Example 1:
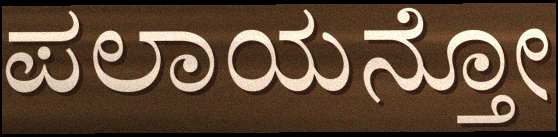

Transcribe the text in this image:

ಪಲಾಯನ್ತೋ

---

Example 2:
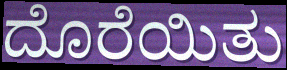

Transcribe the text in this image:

ದೊರೆಯಿತು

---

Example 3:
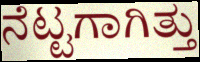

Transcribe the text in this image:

ನೆಟ್ಟಗಾಗಿತ್ತು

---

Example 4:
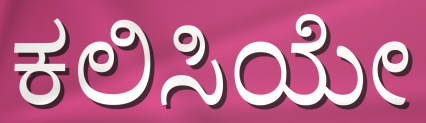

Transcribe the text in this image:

ಕಲಿಸಿಯೇ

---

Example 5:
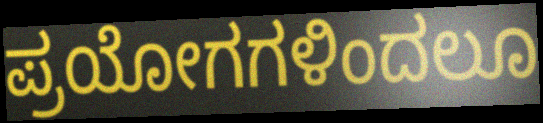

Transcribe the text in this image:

ಪ್ರಯೋಗಗಳಿಂದಲೂ